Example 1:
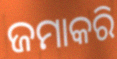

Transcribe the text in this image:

ଜମାକରି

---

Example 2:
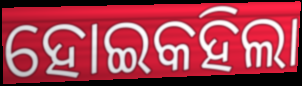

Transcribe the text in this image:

ହୋଇକହିଲା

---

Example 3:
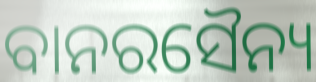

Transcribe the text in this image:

ବାନରସୈନ୍ୟ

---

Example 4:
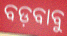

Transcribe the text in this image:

ବଡ଼ବାବୁ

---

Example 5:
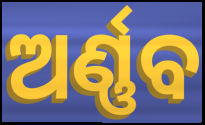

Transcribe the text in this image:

ଅର୍ଣ୍ଣବ